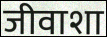
जीवाशा